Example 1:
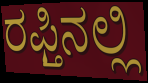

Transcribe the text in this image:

ರಫ್ತಿನಲ್ಲಿ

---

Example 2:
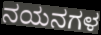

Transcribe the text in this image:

ನಯನಗಳ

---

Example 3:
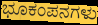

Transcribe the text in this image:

ಭೂಕಂಪನಗಳು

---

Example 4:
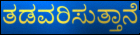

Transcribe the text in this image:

ತಡವರಿಸುತ್ತಾನೆ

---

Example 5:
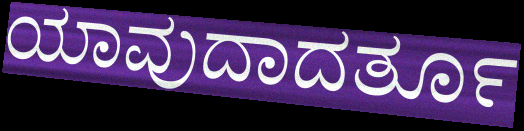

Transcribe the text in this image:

ಯಾವುದಾದರ್ತೂ